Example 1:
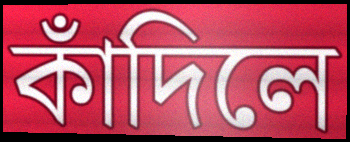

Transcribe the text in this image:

কাঁদিলে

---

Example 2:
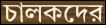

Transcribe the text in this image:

চালকদের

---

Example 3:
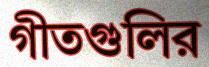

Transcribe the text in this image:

গীতগুলির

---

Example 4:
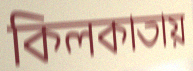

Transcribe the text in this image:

কিলকাতায়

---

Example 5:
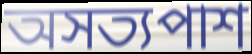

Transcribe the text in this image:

অসত্যপাশ